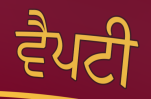
ਵੈਪਟੀ